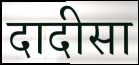
दादीसा